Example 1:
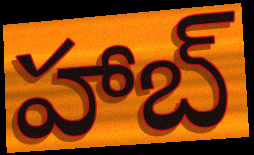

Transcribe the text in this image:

హాబ్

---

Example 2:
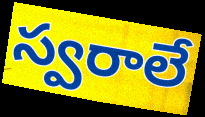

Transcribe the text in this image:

స్వరాలే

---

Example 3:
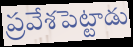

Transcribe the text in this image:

ప్రవేశపెట్టాడు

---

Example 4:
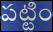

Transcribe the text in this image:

పట్టిం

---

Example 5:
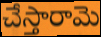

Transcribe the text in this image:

చేస్తారామె